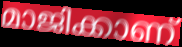
മാജിക്കാണ്